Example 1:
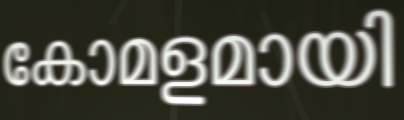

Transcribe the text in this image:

കോമളമായി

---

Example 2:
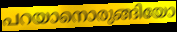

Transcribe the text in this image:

പറയാനൊരുങ്ങിയോ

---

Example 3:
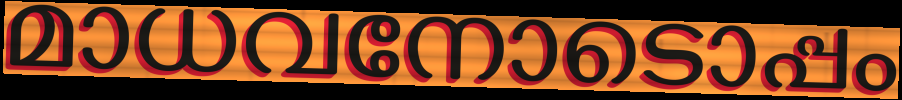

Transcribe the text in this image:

മാധവനോടൊപ്പം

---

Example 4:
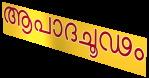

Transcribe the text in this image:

ആപാദചൂഢം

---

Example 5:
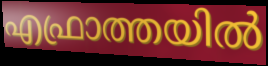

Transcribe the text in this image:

എഫ്രാത്തയിൽ